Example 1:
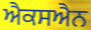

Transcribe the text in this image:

ਐਕਸਐਨ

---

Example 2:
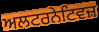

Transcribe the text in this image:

ਅਲਟਰਨੇਟਿਵਜ਼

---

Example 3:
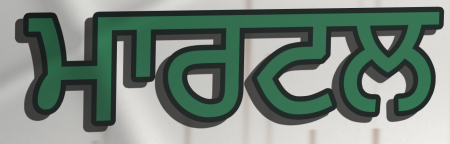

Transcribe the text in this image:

ਮਾਰਟਲ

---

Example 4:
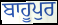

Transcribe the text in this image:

ਬਾਹੂਪੁਰ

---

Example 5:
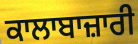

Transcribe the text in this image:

ਕਾਲਾਬਾਜ਼ਾਰੀ